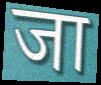
जा